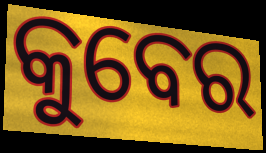
କୁବେର